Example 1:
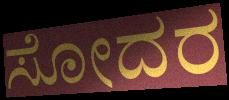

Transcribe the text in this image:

ಸೋದರ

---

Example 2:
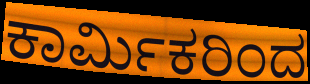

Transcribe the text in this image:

ಕಾರ್ಮಿಕರಿಂದ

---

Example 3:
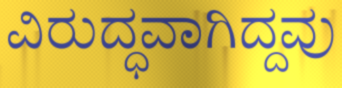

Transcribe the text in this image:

ವಿರುದ್ಧವಾಗಿದ್ದವು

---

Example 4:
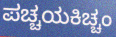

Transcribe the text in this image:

ಪಚ್ಚಯಕಿಚ್ಚಂ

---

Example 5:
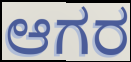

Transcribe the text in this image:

ಆಗರ